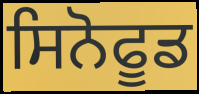
ਸਿਨੋਫੂਡ